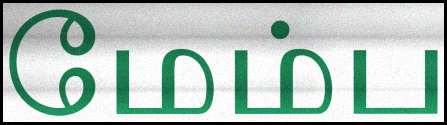
மேம்ப